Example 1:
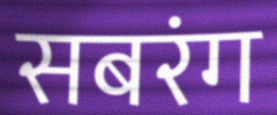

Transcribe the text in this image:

सबरंग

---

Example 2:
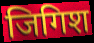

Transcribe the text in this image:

जिगिश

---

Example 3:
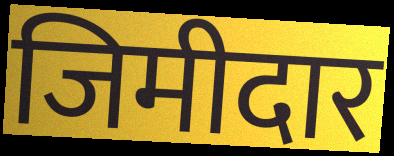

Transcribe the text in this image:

जिमीदार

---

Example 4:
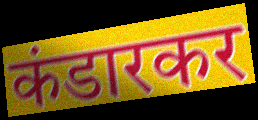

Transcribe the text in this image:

कंडारकर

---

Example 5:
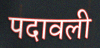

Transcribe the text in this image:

पदावली